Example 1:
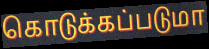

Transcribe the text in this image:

கொடுக்கப்படுமா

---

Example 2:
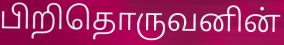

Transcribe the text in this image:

பிறிதொருவனின்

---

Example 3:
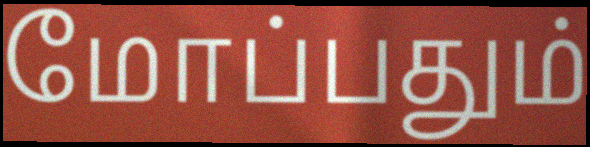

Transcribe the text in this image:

மோப்பதும்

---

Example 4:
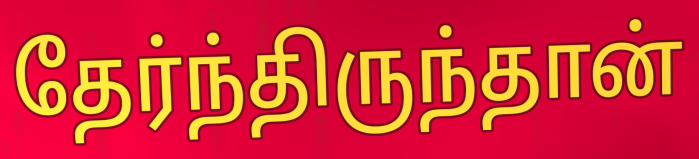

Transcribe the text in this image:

தேர்ந்திருந்தான்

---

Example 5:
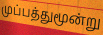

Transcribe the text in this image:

முப்பத்துமூன்று